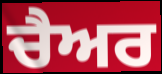
ਚੈਅਰ